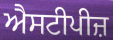
ਐਸਟੀਪੀਜ਼